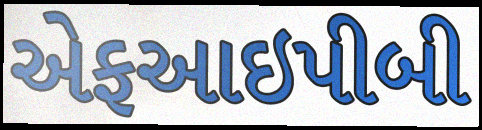
એફઆઇપીબી